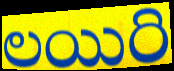
లయిరి